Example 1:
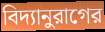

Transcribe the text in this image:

বিদ্যানুরাগের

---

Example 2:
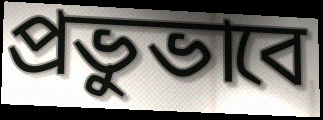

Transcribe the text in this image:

প্রভুভাবে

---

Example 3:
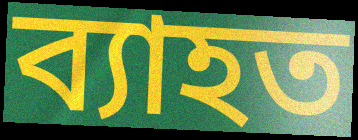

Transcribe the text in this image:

ব্যাহত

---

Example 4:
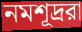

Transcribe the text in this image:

নমশূদ্ররা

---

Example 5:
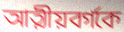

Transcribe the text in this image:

আত্মীয়বর্গকে